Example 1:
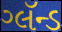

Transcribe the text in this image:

ગ્લૅન્ડ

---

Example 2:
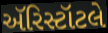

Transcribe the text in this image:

ઍરિસ્ટૉટલે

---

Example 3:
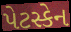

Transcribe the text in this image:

પેટસ્કેન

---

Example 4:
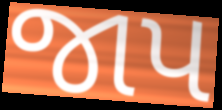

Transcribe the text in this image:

જાપ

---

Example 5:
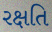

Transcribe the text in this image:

રક્ષતિ